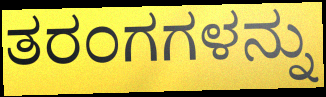
ತರಂಗಗಳನ್ನು